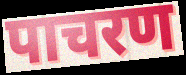
पाचरण